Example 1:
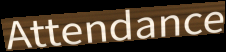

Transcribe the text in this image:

Attendance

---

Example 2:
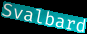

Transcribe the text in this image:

Svalbard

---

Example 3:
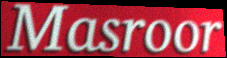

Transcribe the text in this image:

Masroor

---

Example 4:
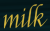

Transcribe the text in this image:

milk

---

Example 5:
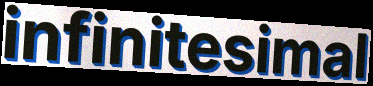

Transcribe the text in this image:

infinitesimal